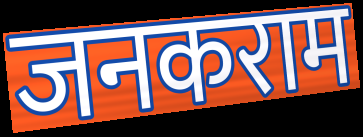
जनकराम